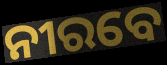
ନୀରବେ